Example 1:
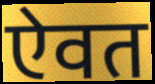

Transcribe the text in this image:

ऐवत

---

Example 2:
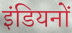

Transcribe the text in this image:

इंडियनों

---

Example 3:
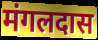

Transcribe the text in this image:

मंगलदास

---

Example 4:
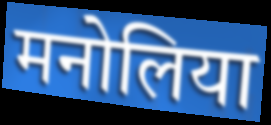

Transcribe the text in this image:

मनोलिया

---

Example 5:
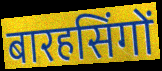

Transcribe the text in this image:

बारहसिंगों